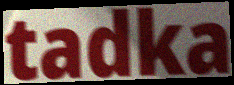
tadka